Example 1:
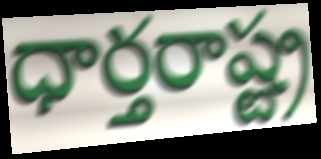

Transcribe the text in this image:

ధార్తరాష్ట్ర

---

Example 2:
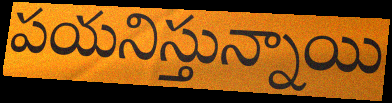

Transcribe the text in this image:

పయనిస్తున్నాయి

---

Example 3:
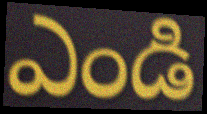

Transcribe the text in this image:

ఎండి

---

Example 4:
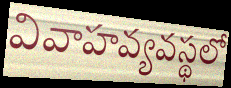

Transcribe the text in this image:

వివాహవ్యవస్థలో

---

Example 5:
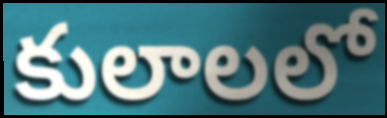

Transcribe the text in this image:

కులాలలో